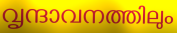
വൃന്ദാവനത്തിലും